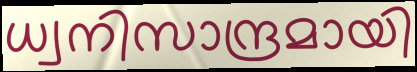
ധ്വനിസാന്ദ്രമായി